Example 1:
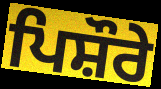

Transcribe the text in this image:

ਪਿਸ਼ੌਰੇ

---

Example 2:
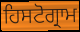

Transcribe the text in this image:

ਹਿਸਟੋਗ੍ਰਾਮ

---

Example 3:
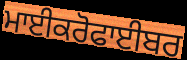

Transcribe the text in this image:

ਮਾਈਕਰੋਫਾਈਬਰ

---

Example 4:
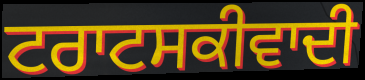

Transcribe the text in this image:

ਟਰਾਟਸਕੀਵਾਦੀ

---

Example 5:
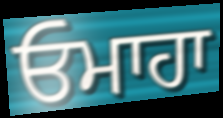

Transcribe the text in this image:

ਓਮਾਹਾ